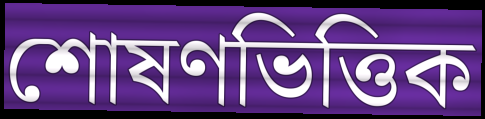
শোষণভিত্তিক